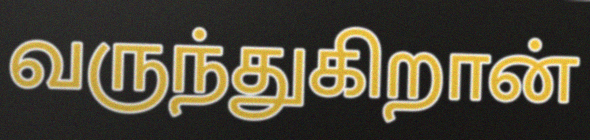
வருந்துகிறான்